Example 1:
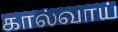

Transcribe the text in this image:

கால்வாய்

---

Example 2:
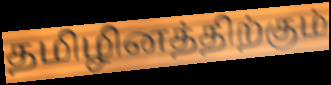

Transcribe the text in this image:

தமிழினத்திற்கும்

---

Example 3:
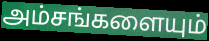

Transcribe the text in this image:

அம்சங்களையும்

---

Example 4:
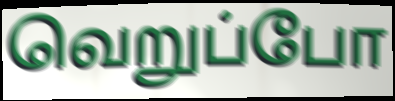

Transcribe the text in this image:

வெறுப்போ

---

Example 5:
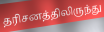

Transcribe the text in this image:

தரிசனத்திலிருந்து